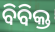
ବିବିକ୍ତ